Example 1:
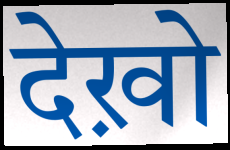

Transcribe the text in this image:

देख़ो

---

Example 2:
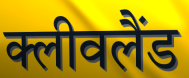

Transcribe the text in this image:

क्‍लीवलैंड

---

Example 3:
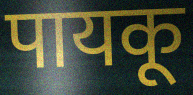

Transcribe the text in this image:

पायकू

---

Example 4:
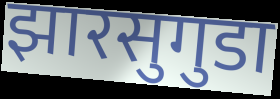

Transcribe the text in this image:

झारसुगुडा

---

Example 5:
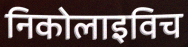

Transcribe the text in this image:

निकोलाइविच